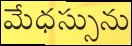
మేధస్సును